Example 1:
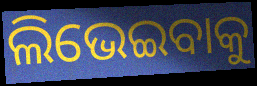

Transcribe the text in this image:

ଲିଭେଇବାକୁ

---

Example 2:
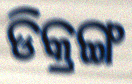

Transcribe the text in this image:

ଡିକ୍ରଙ୍ଗ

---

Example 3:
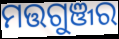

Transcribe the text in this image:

ମତ୍ତଗୁଞ୍ଜର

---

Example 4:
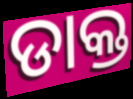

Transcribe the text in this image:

ଡାକ୍ତ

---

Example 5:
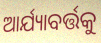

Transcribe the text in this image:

ଆର୍ଯ୍ୟାବର୍ତ୍ତକୁ